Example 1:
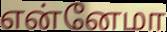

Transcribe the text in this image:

என்னேமா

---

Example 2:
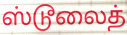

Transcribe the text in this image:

ஸ்டூலைத்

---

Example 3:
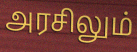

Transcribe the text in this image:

அரசிலும்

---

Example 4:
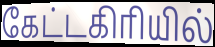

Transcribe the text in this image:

கேட்டகிரியில்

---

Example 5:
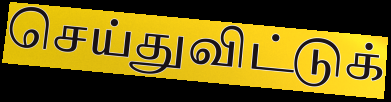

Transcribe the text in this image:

செய்துவிட்டுக்